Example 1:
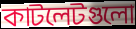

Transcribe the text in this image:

কাটলেটগুলো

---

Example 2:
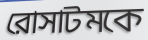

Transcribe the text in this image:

রোসাটমকে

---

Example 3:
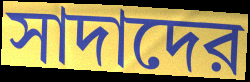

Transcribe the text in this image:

সাদাদের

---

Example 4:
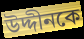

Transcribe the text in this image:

উদ্দীনকে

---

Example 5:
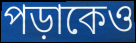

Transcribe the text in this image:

পড়াকেও